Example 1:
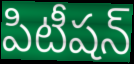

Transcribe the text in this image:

పిటీషన్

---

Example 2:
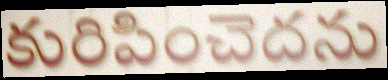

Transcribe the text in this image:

కురిపించెదను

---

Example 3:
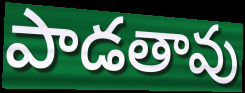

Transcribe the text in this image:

పాడతావు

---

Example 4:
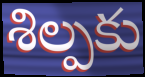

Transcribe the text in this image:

శిల్పకు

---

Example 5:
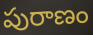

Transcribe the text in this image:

పురాణం